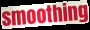
smoothing